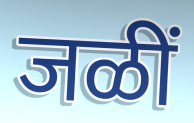
जळीं